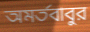
অমর্তবাবুর